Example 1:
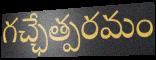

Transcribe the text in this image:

గచ్ఛేత్పరమం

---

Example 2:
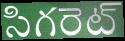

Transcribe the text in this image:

సిగరెట్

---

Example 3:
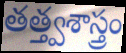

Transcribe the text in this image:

తత్త్వశాస్త్రం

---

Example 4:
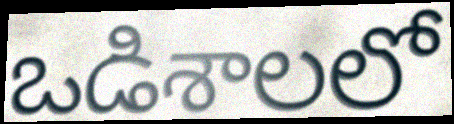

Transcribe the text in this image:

ఒడిశాలలో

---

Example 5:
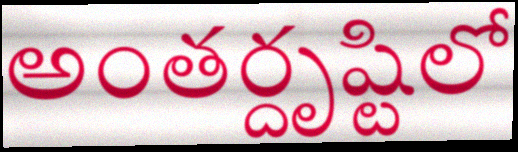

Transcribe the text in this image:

అంతర్దృష్టిలో